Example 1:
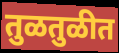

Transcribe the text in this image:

तुळतुळीत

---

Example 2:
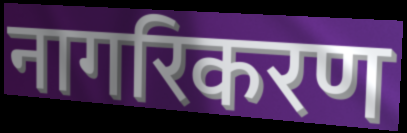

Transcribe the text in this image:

नागरिकरण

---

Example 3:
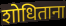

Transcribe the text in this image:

शोधिताना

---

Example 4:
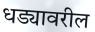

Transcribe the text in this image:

धड्यावरील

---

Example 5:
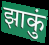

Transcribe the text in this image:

झाकुं